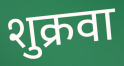
शुक्रवा